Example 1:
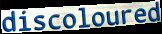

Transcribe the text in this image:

discoloured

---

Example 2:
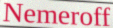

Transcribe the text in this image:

Nemeroff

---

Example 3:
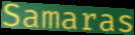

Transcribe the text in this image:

Samaras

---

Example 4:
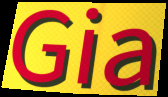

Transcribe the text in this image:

Gia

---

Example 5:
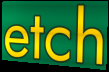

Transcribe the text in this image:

etch